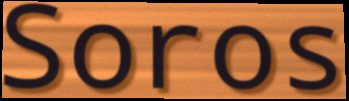
Soros